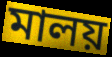
মালয়